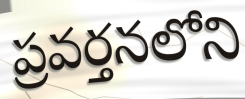
ప్రవర్తనలోని